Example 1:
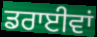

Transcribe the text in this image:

ਡਰਾਈਵਾਂ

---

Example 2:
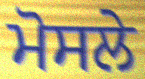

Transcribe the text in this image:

ਮੋਸਲੇ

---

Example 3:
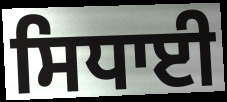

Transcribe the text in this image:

ਸਿਧਾਈ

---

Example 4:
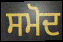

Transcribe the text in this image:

ਸਮੋਦ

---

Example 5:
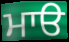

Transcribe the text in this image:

ਮਾੳ